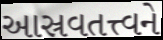
આસ્રવતત્ત્વને